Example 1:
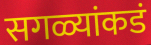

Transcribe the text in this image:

सगळ्यांकडं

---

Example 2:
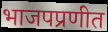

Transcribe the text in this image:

भाजपप्रणीत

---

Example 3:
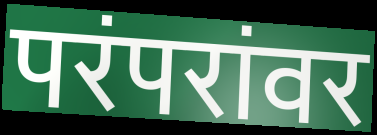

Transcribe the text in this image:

परंपरांवर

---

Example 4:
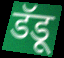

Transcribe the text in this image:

डॅडू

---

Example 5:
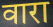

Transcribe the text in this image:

वारा